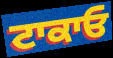
ਟਾਕਾਓ